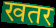
खतर